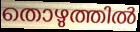
തൊഴുത്തിൽ